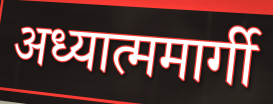
अध्यात्ममार्गी